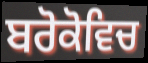
ਬਰੋਕੋਵਿਚ